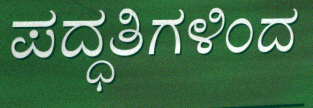
ಪದ್ಧತಿಗಳಿಂದ